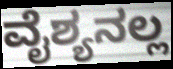
ವೈಶ್ಯನಲ್ಲ